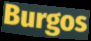
Burgos